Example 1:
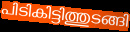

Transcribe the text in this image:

പിടികിട്ടിത്തുടങ്ങി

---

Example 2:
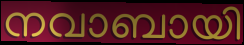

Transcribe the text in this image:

നവാബായി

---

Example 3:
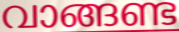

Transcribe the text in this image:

വാങ്ങണ്ട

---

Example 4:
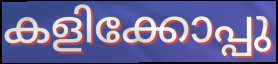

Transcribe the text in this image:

കളിക്കോപ്പു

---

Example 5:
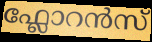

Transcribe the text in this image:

ഫ്ലോറൻസ്